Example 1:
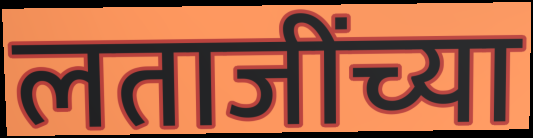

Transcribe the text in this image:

लताजींच्या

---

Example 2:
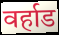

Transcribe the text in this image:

वर्हाड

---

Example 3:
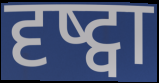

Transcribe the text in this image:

दृष्ट्वा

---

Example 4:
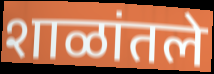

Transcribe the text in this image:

शाळांतले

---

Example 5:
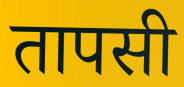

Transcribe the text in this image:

तापसी